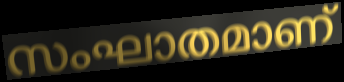
സംഘാതമാണ്